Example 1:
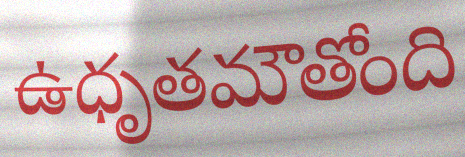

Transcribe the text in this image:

ఉధృతమౌతోంది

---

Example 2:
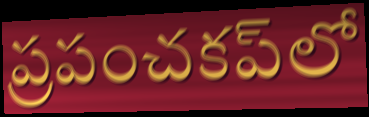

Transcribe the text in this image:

ప్రపంచకప్‌లో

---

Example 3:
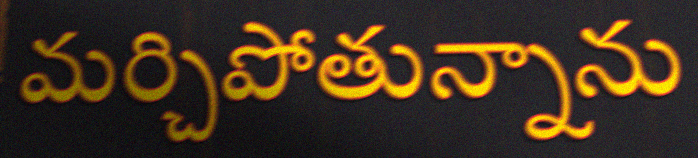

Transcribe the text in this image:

మర్చిపోతున్నాను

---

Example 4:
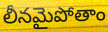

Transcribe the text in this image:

లీనమైపోతాం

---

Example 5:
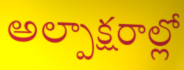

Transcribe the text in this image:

అల్పాక్షరాల్లో